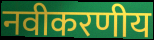
नवीकरणीय